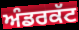
ਅੰਡਰਕੱਟ